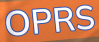
OPRS